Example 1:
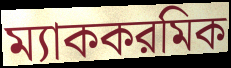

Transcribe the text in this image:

ম্যাককরমিক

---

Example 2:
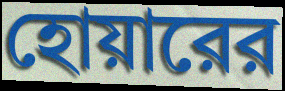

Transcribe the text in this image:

হোয়ারের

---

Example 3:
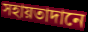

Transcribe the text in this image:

সহায়তাদানে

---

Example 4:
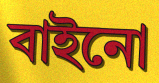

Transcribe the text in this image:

বাইনো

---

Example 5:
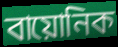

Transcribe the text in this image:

বায়োনিক